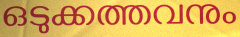
ഒടുക്കത്തവനും